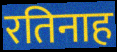
रतिनाह